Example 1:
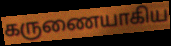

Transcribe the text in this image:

கருணையாகிய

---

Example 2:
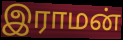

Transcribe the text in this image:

இராமன்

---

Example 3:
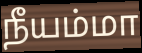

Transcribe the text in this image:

நீயம்மா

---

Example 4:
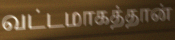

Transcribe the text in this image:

வட்டமாகத்தான்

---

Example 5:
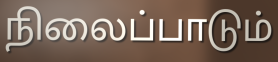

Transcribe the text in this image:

நிலைப்பாடும்